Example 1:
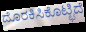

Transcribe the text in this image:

ದೊರಕಿಸಿಕೊಟ್ಟಿದೆ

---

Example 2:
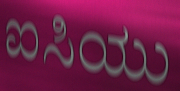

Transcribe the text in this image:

ಐಸಿಯು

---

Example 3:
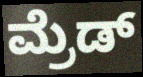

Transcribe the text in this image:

ಮ್ರೆಡ್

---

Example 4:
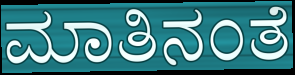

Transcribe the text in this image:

ಮಾತಿನಂತೆ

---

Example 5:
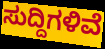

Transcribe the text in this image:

ಸುದ್ದಿಗಳಿವೆ